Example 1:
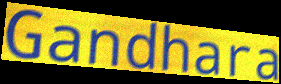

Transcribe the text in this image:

Gandhara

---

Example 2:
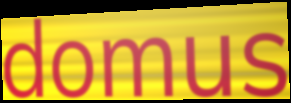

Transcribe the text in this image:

domus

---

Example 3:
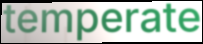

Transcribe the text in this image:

temperate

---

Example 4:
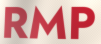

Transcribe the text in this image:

RMP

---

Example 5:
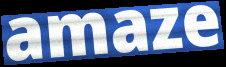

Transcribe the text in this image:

amaze